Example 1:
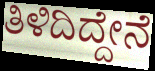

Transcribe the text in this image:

ತಿಳಿದಿದ್ದೇನೆ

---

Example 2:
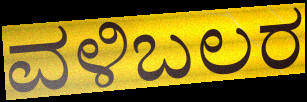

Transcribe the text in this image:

ವಳಿಬಲರ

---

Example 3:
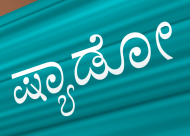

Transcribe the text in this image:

ಷ್ಯಾಡೋ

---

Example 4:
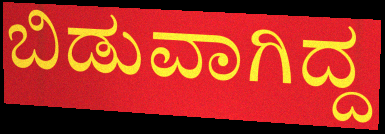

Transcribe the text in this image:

ಬಿಡುವಾಗಿದ್ದ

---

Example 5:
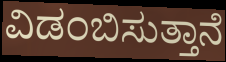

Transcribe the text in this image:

ವಿಡಂಬಿಸುತ್ತಾನೆ